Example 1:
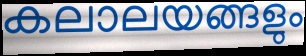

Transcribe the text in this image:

കലാലയങ്ങളും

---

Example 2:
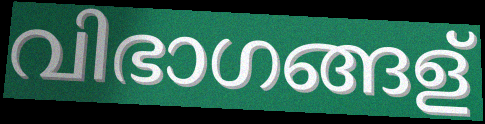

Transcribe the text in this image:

വിഭാഗങ്ങള്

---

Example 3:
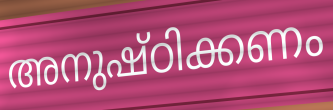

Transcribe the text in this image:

അനുഷ്ഠിക്കണം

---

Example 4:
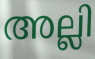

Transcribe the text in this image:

അല്ലി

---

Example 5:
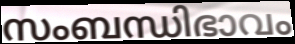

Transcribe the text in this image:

സംബന്ധിഭാവം